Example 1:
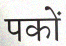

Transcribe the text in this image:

पकों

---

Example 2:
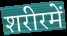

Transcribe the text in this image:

शरीरमें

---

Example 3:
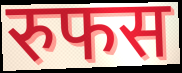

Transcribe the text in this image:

रुफस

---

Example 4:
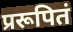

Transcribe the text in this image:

प्ररूपितं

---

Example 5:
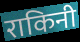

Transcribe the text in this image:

राकिनी